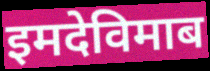
इमदेविमाब